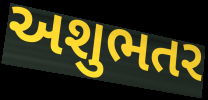
અશુભતર